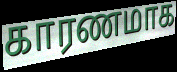
காரணமாக